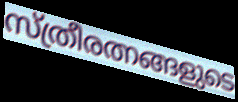
സ്ത്രീരത്നങ്ങളുടെ